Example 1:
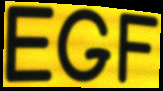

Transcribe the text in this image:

EGF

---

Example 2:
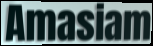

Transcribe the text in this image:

Amasiam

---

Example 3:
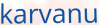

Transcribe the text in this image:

karvanu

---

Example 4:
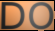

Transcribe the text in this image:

DO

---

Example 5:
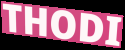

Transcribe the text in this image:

THODI